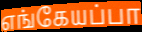
எங்கேயப்பா